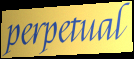
perpetual